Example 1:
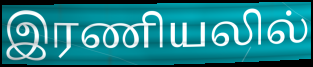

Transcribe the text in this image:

இரணியலில்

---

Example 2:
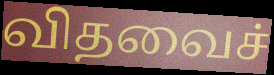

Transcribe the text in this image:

விதவைச்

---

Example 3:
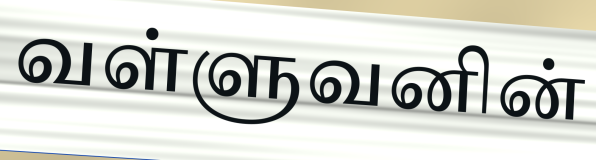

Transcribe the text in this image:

வள்ளுவனின்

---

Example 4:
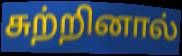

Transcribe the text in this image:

சுற்றினால்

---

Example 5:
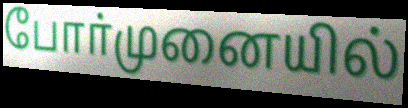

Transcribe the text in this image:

போர்முனையில்